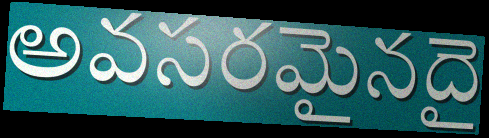
అవసరమైనదై